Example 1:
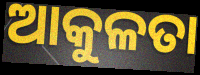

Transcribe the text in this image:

ଆକୁଳତା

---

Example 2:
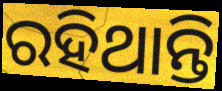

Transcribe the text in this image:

ରହିଥାନ୍ତି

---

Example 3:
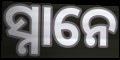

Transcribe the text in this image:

ସ୍ନାନେ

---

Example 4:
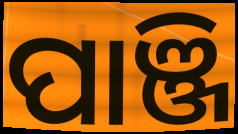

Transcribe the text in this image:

ପାଞ୍ଜି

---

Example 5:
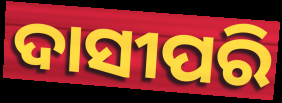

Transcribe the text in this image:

ଦାସୀପରି